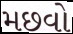
મછવો